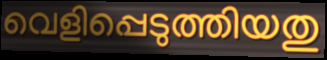
വെളിപ്പെടുത്തിയതു